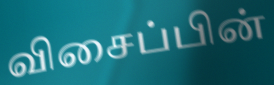
விசைப்பின்